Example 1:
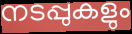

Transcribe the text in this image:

നടപ്പുകളും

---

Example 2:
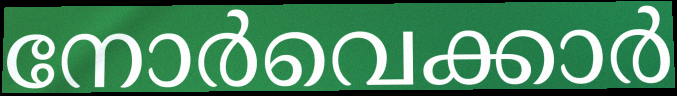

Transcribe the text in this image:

നോർവെക്കാർ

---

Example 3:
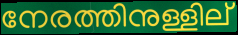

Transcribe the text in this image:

നേരത്തിനുള്ളില്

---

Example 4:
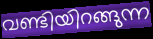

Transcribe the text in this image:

വണ്ടിയിറങ്ങുന്ന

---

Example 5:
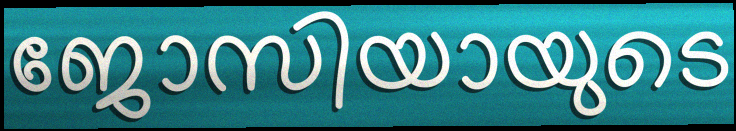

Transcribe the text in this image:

ജോസിയായുടെ